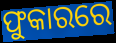
ଫୁକାରରେ